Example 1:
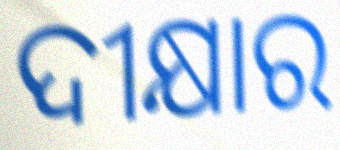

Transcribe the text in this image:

ଦୀକ୍ଷାର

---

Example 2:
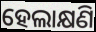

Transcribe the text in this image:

ହେଲାକ୍ଷଣି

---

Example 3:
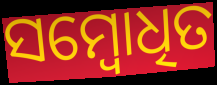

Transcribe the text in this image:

ସମ୍ବୋଧିତ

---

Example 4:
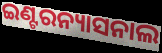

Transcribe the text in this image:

ଇଣ୍ଟରନ୍ୟାସନାଲ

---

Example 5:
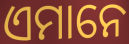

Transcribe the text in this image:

ଏମାନେ